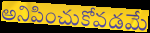
అనిపించుకోవడమే